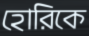
হোরিকে